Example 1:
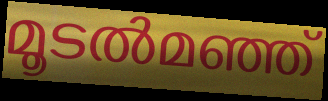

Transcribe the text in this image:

മൂടൽമഞ്ഞ്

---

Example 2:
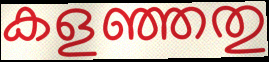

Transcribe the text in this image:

കളഞ്ഞതു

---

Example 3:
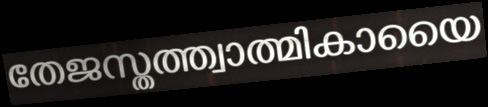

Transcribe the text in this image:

തേജസ്തത്ത്വാത്മികായൈ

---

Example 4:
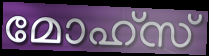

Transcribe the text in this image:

മോഹ്സ്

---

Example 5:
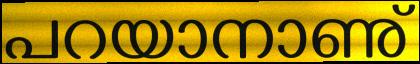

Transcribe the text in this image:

പറയാനാണു്